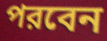
পরবেন